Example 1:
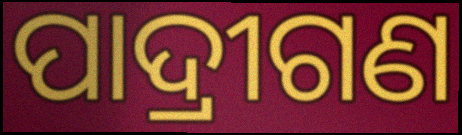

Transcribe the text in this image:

ପାଦ୍ରୀଗଣ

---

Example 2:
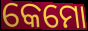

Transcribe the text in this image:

କେମୋ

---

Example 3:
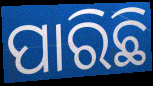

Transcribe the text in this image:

ପାରିଛି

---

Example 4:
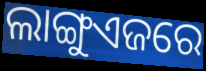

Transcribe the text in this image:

ଲାଙ୍ଗୁଏଜରେ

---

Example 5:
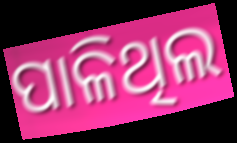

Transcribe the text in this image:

ପାଳିଥିଲ